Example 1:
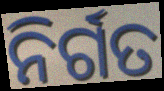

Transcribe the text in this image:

ନିର୍ଗତ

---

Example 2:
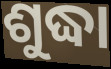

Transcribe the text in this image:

ଶୁଦ୍ଧା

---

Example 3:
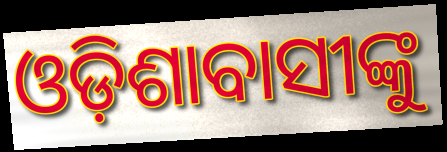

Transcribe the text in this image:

ଓଡ଼ିଶାବାସୀଙ୍କୁ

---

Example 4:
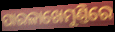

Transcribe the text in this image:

ପାରଳାଖେମୁଣ୍ତିରେ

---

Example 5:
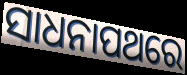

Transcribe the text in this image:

ସାଧନାପଥରେ